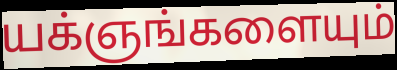
யக்ஞங்களையும்